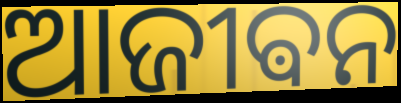
ଆଜୀଵନ